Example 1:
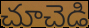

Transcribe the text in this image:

చూచెడి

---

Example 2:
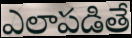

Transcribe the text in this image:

ఎలాపడితే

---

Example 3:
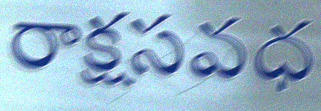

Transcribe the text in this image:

రాక్షసవధ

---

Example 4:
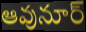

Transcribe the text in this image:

ఆవునూర్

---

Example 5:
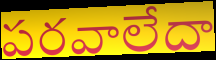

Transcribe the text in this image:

పరవాలేదా